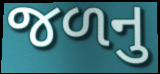
જળનુ